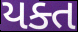
યક્ત